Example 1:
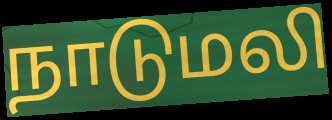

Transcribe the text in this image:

நாடுமலி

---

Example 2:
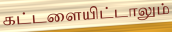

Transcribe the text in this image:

கட்டளையிட்டாலும்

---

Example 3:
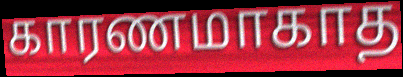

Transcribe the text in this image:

காரணமாகாத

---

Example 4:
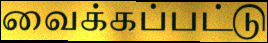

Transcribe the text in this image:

வைக்கப்பட்டு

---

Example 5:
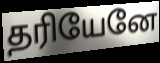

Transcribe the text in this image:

தரியேனே